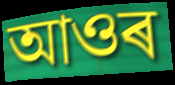
আওৰ